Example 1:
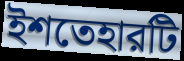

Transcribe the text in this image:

ইশতেহারটি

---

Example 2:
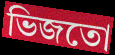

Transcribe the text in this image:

ভিজতো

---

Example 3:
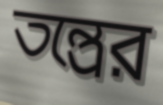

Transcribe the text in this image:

তন্ত্রের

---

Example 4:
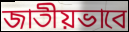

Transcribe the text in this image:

জাতীয়ভাবে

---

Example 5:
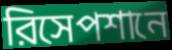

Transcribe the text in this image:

রিসেপশানে